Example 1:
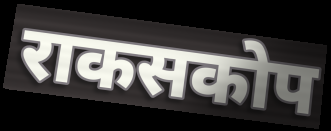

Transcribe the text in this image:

राकसकोप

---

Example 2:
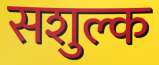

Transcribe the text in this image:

सशुल्क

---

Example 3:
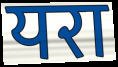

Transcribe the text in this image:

यरा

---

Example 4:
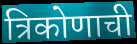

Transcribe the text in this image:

त्रिकोणाची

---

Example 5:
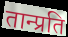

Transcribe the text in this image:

तान्प्रति